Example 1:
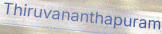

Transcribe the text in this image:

Thiruvananthapuram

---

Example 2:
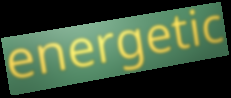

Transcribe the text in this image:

energetic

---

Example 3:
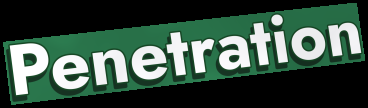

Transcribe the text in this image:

Penetration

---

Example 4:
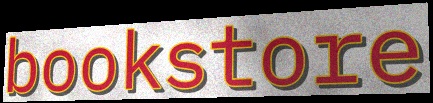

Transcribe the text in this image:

bookstore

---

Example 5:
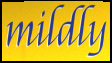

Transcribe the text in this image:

mildly